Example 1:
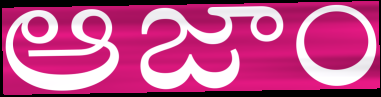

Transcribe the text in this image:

ఆజాం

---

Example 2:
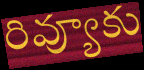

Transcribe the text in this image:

రివ్యూకు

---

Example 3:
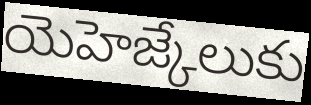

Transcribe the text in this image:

యెహెజ్కేలుకు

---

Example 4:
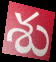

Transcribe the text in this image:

శు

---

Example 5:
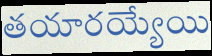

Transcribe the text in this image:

తయారయ్యేయి